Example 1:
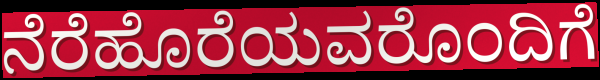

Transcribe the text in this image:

ನೆರೆಹೊರೆಯವರೊಂದಿಗೆ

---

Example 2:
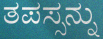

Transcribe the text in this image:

ತಪಸ್ಸನ್ನು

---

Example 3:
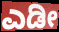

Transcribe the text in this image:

ಎಡೀ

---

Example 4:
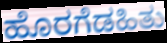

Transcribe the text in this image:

ಹೊರಗೆಡಹಿತು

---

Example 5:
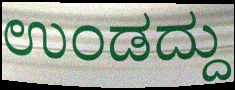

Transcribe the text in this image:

ಉಂಡದ್ದು